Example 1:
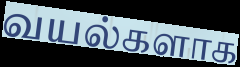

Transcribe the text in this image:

வயல்களாக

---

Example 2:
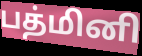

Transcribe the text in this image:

பத்மினி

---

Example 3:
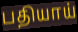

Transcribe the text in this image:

பதியாய்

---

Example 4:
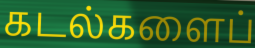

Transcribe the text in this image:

கடல்களைப்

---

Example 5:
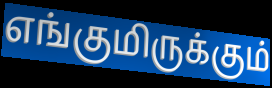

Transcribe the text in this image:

எங்குமிருக்கும்